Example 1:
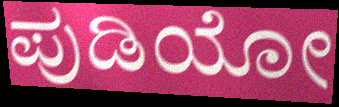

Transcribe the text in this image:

ಪುಡಿಯೋ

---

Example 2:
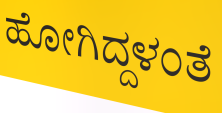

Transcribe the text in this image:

ಹೋಗಿದ್ದಳಂತೆ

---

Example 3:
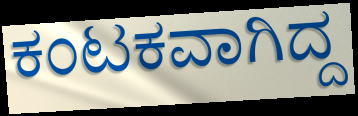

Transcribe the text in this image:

ಕಂಟಕವಾಗಿದ್ದ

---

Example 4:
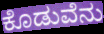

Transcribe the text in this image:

ಕೊಡುವೆನು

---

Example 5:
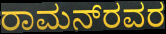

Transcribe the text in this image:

ರಾಮನ್‌ರವರ